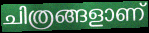
ചിത്രങ്ങളാണ്